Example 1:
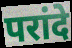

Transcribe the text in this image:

परांदे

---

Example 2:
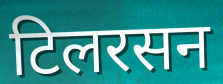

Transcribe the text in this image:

टिलरसन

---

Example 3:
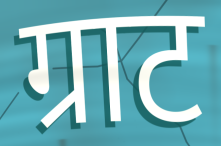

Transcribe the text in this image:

ग्राट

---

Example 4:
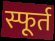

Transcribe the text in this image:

स्‍फूर्त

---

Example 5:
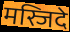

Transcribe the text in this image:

मस्जिदे